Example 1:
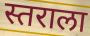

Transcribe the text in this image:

स्तराला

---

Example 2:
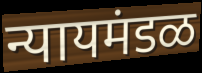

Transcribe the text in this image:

न्यायमंडळ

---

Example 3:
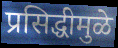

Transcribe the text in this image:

प्रसिद्धीमुळे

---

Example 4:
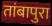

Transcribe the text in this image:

तांबापुरा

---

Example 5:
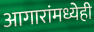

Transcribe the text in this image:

आगारांमध्येही